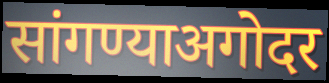
सांगण्याअगोदर